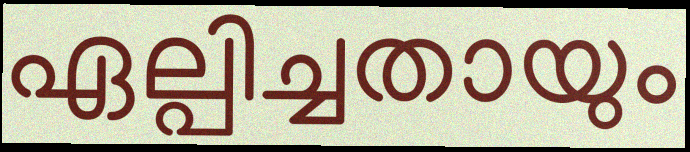
ഏല്പിച്ചതായും